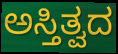
ಅಸ್ತಿತ್ವದ